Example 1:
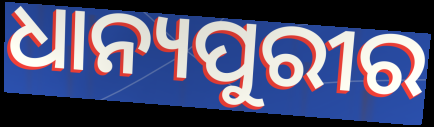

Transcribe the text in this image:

ଧାନ୍ୟପୁରୀର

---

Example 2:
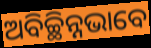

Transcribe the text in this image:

ଅବିଚ୍ଛିନ୍ନଭାବେ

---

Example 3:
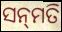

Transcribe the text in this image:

ସନ୍‌ମତି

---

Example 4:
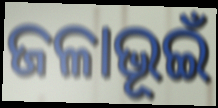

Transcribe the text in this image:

ଜଳାଭୂଇଁ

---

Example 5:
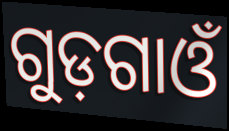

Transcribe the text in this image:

ଗୁଡ଼ଗାଓଁ